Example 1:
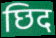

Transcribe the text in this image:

छिद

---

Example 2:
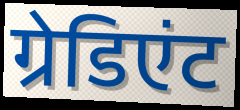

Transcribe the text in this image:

ग्रेडिएंट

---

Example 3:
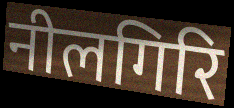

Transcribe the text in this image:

नीलगिरि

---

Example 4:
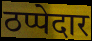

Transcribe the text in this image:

ठप्पेदार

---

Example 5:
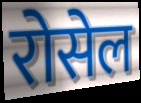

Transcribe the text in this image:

रोसेल